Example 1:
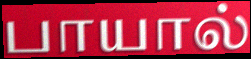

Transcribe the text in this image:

பாயால்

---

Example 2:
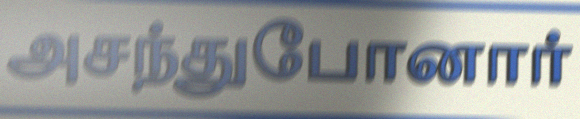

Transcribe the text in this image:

அசந்துபோனார்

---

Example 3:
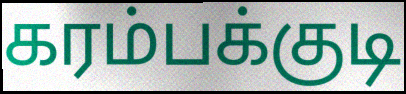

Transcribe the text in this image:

கரம்பக்குடி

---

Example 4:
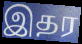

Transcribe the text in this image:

இதர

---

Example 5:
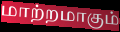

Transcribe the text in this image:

மாற்றமாகும்